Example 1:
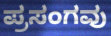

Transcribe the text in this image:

ಪ್ರಸಂಗವು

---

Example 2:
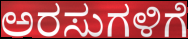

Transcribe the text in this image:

ಅರಸುಗಳಿಗೆ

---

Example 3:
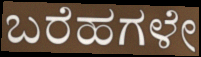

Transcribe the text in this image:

ಬರೆಹಗಳೇ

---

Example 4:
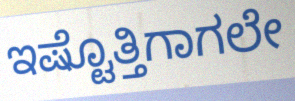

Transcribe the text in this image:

ಇಷ್ಟೊತ್ತಿಗಾಗಲೇ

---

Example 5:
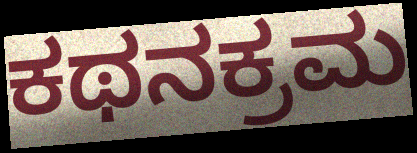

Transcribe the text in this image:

ಕಥನಕ್ರಮ